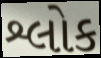
શ્લોક